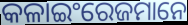
କଳାଇଂରେଜମାନେ